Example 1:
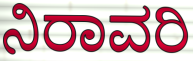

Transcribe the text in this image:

ನಿರಾವರಿ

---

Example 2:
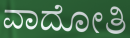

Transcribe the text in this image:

ವಾದೋತಿ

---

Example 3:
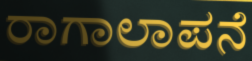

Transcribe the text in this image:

ರಾಗಾಲಾಪನೆ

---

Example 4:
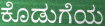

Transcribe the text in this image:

ಕೊಡುಗೆಯ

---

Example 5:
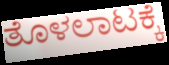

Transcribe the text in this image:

ತೊಳಲಾಟಕ್ಕೆ